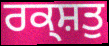
ਰਕ੍ਸ਼ਤੁ